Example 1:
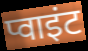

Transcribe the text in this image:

प्‍वाइंट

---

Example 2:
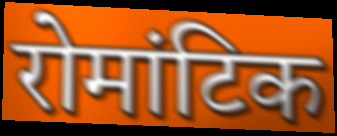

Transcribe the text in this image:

रोमांटिक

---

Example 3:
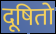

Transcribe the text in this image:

दूषितो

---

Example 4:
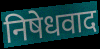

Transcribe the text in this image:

निषेधवाद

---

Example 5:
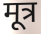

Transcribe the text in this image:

मूत्र